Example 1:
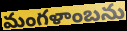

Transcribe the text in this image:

మంగళాంబను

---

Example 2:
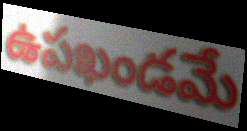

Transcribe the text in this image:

ఉపఖండమే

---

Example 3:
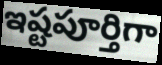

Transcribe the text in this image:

ఇష్టపూర్తిగా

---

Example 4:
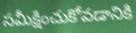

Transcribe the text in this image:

సమీక్షించుకోవడానికి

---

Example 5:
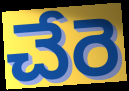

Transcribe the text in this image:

చేరె